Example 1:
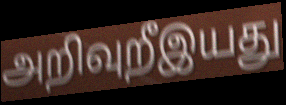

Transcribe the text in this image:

அறிவுறீஇயது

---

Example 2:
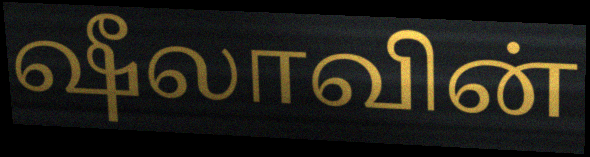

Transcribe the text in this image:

ஷீலாவின்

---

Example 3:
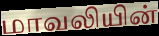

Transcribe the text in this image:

மாவலியின்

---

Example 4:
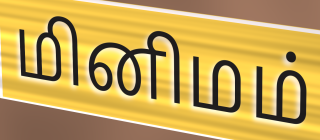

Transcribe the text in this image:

மினிமம்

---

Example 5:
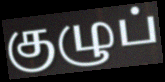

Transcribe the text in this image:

குழுப்